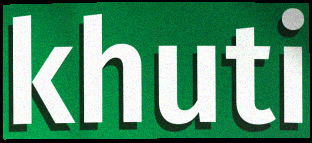
khuti